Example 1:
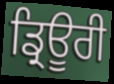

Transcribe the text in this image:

ਡ੍ਰਿਊਰੀ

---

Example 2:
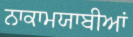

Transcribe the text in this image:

ਨਾਕਾਮਯਾਬੀਆਂ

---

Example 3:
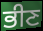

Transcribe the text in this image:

ਭੀਣ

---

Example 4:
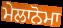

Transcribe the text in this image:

ਮੇਲਾਨੋਮਾ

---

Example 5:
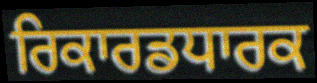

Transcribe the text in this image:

ਰਿਕਾਰਡਧਾਰਕ